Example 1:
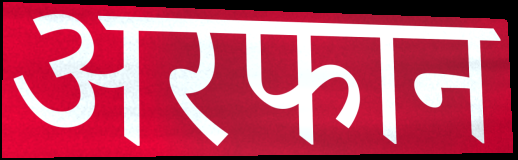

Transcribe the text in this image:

अरफान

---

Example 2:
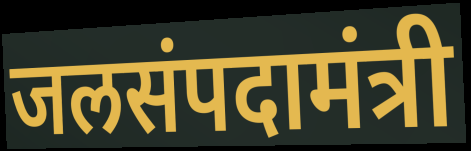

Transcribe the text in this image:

जलसंपदामंत्री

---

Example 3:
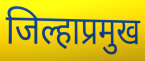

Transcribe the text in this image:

जिल्हाप्रमुख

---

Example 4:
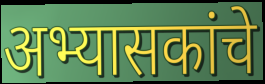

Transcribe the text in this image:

अभ्यासकांचे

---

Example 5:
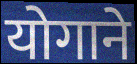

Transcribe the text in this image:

योगाने